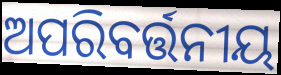
ଅପରିବର୍ତ୍ତନୀୟ